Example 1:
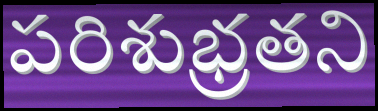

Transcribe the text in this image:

పరిశుభ్రతని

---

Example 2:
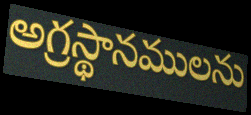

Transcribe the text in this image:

అగ్రస్థానములను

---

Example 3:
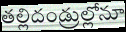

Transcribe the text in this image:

తల్లిదండ్రుల్లోనూ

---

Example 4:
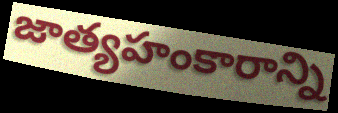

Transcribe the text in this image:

జాత్యహంకారాన్ని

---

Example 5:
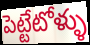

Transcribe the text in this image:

పెట్టేటోళ్ళు